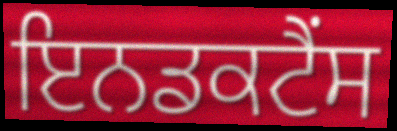
ਇਨਡਕਟੈਂਸ